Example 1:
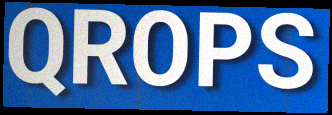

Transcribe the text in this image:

QROPS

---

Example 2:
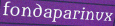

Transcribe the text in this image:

fondaparinux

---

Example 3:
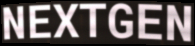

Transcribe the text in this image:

NEXTGEN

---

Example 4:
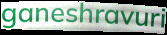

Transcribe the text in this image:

ganeshravuri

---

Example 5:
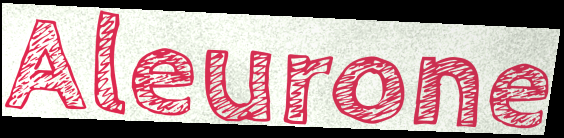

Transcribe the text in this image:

Aleurone